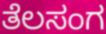
ತೆಲಸಂಗ